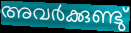
അവർക്കുണ്ടു്